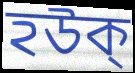
হউক্